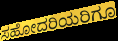
ಸಹೋದರಿಯರಿಗೂ